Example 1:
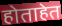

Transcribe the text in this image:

होताहेत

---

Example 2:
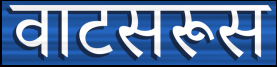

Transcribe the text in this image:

वाटसरूस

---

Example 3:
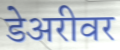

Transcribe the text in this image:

डेअरीवर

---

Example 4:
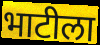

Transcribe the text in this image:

भाटीला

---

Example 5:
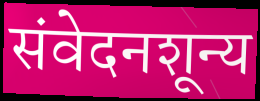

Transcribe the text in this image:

संवेदनशून्य